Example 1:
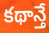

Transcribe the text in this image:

కథాన్తే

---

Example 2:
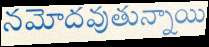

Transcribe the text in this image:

నమోదవుతున్నాయి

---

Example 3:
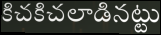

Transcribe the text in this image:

కిచకిచలాడినట్టు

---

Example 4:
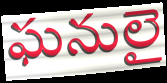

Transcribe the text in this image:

ఘనులై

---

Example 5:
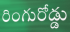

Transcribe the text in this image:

రింగురోడ్డు